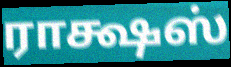
ராக்ஷஸ்